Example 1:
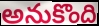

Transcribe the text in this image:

అనుకొంది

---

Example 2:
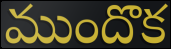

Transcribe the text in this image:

ముందొక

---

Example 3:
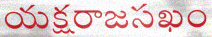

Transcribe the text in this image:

యక్షరాజసఖం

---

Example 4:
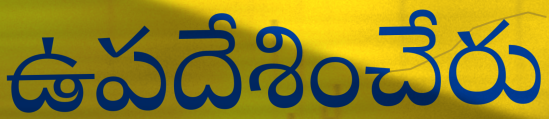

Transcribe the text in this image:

ఉపదేశించేరు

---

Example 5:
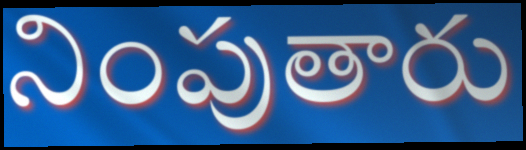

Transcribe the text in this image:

నింపుతారు